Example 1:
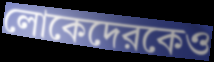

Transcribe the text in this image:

লোকেদেরকেও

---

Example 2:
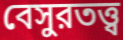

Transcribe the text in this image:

বেসুরতত্ত্ব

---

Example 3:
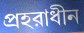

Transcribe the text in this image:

প্রহরাধীন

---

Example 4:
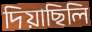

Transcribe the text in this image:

দিয়াছিলি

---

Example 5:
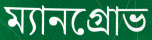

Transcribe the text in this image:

ম্যানগ্রোভ